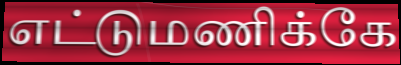
எட்டுமணிக்கே